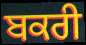
ਬਕਰੀ